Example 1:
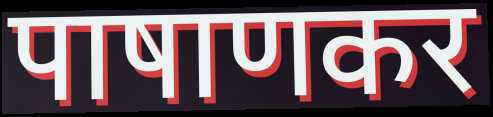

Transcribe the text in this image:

पाषाणकर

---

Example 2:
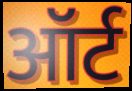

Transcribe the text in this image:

ऑर्ट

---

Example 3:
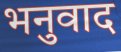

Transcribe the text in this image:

भनुवाद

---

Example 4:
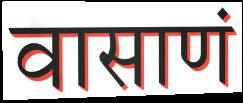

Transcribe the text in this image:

वासाणं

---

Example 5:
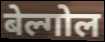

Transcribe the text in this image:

बेल्गोल